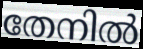
തേനിൽ